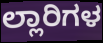
ಲ್ಲಾರಿಗಳ